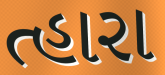
ત્હારા